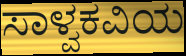
ಸಾಳ್ವಕವಿಯ